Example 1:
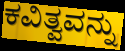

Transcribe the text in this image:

ಕವಿತ್ವವನ್ನು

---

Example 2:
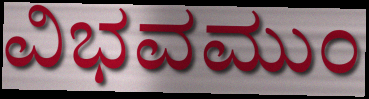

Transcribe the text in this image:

ವಿಭವಮುಂ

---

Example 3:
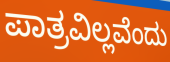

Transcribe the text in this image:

ಪಾತ್ರವಿಲ್ಲವೆಂದು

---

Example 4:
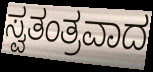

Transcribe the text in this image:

ಸ್ವತಂತ್ರವಾದ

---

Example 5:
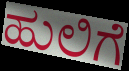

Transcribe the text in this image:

ಹುಲಿಗೆ